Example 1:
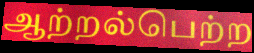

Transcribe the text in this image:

ஆற்றல்பெற்ற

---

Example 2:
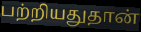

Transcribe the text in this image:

பற்றியதுதான்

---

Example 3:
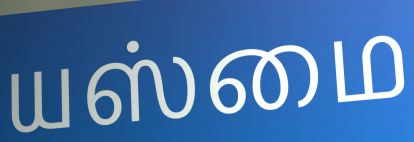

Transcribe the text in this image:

யஸ்மை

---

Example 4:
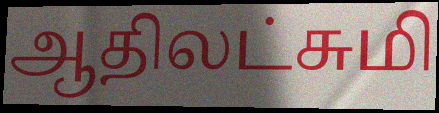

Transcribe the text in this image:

ஆதிலட்சுமி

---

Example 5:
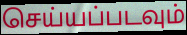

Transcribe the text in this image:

செய்யப்படவும்